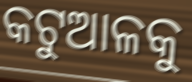
କଟୁଆଳକୁ